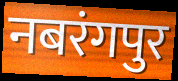
नबरंगपुर